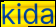
kida